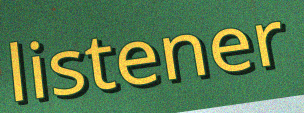
listener